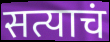
सत्याचं